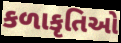
કળાકૃતિઓ